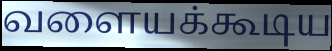
வளையக்கூடிய